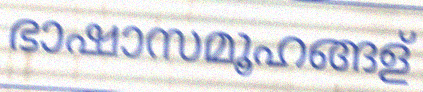
ഭാഷാസമൂഹങ്ങള്